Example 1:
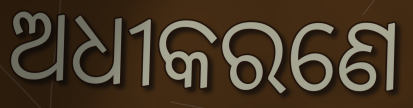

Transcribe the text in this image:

ଅଧୀକରଣେ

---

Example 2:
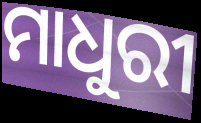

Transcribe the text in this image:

ମାଧୁରୀ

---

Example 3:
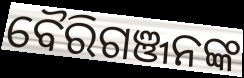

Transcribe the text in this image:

ବୈରିଗଞ୍ଜନଙ୍କ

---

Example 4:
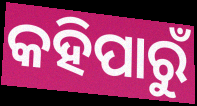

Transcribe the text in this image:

କହିପାରୁଁ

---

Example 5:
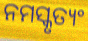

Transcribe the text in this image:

ନମସ୍କୃତ୍ୟଂ